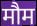
मौम